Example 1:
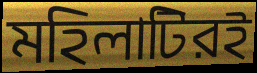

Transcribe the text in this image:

মহিলাটিরই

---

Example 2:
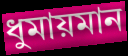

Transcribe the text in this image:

ধুমায়মান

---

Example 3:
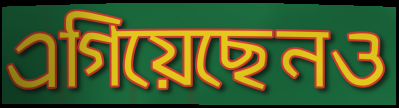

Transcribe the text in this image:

এগিয়েছেনও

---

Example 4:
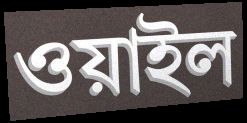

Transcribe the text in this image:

ওয়াইল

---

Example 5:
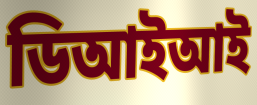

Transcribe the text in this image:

ডিআইআই